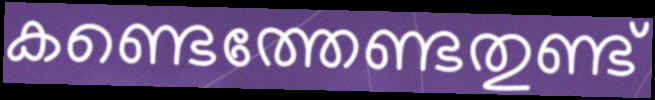
കണ്ടെത്തേണ്ടതുണ്ട്